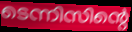
ടെന്നിസിന്റെ